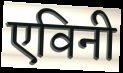
एविनी